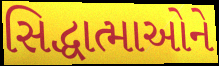
સિદ્ધાત્માઓને